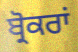
ਬ੍ਰੋਕਰਾਂ